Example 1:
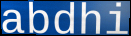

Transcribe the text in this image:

abdhi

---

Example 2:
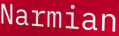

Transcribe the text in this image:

Narmian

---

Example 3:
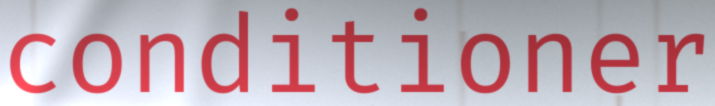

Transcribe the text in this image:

conditioner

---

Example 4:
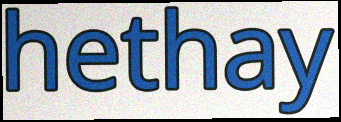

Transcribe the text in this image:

hethay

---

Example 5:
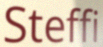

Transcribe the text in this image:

Steffi